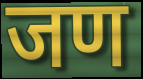
जण